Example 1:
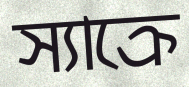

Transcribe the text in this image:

স্যাক্রে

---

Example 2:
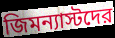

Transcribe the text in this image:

জিমন্যাস্টদের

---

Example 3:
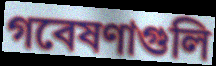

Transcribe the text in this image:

গবেষণাগুলি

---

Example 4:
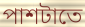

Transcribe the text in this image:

পাশটাতে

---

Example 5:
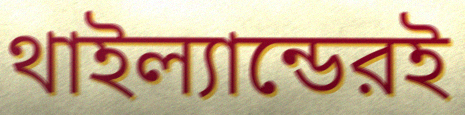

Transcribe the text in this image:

থাইল্যান্ডেরই